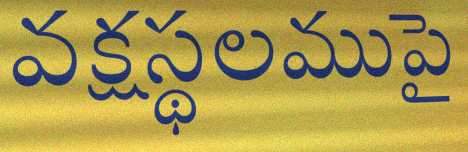
వక్షస్థలముపై